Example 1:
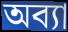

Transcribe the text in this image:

অব্যা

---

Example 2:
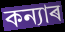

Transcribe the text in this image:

কন্যাৰ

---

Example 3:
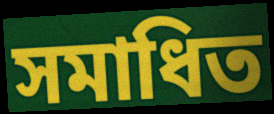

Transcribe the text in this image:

সমাধিত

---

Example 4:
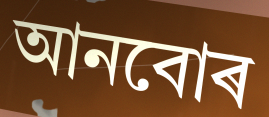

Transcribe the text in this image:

আনবোৰ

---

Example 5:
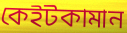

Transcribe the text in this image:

কেইটকামান